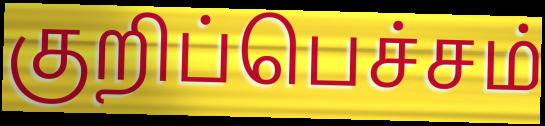
குறிப்பெச்சம்